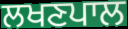
ਲਖਣਪਾਲ